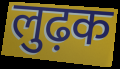
लुढ़क